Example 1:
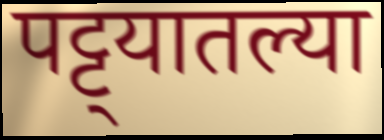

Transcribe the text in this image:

पट्ट्यातल्या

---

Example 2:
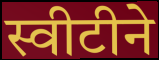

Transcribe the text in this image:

स्वीटीने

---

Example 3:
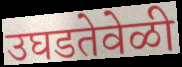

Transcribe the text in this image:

उघडतेवेळी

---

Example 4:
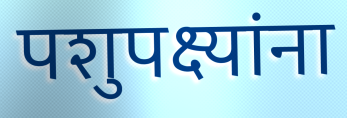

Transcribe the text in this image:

पशुपक्ष्यांना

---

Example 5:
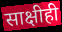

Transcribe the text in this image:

साक्षीही